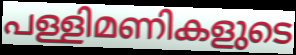
പള്ളിമണികളുടെ